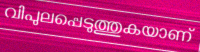
വിപുലപ്പെടുത്തുകയാണ്